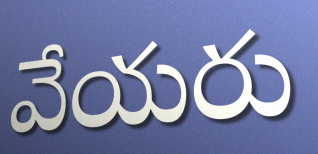
వేయరు